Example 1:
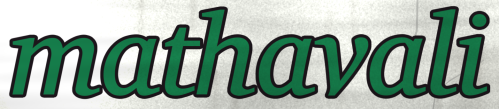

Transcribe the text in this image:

mathavali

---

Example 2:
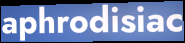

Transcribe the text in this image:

aphrodisiac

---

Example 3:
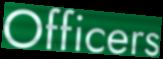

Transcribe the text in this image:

Officers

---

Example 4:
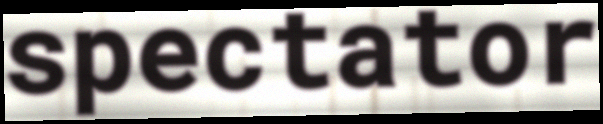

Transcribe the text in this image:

spectator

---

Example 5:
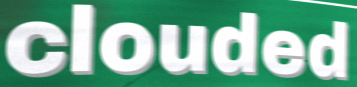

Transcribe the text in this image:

clouded